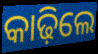
କାଢ଼ିଲେ